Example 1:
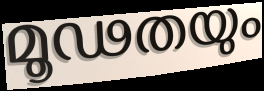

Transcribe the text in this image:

മൂഢതയും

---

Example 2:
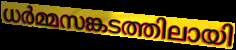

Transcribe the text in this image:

ധർമ്മസങ്കടത്തിലായി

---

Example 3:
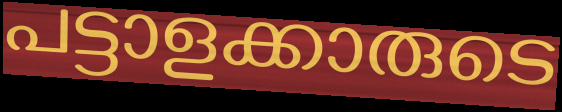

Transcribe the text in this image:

പട്ടാളക്കാരുടെ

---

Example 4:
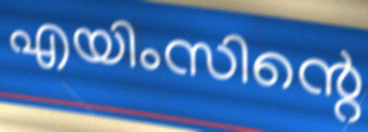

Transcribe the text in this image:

എയിംസിന്റെ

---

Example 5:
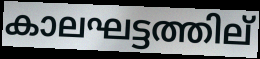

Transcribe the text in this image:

കാലഘട്ടത്തില്